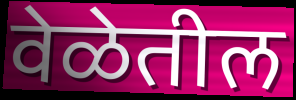
वेळेतील